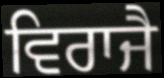
ਵਿਰਾਜੈ